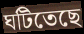
ঘটিতেছে